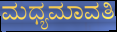
ಮಧ್ಯಮಾವತಿ